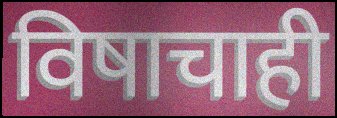
विषाचाही